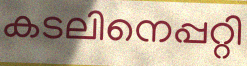
കടലിനെപ്പറ്റി